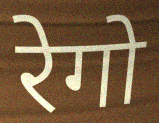
रेगो